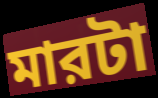
মারটা